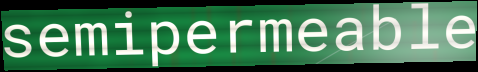
semipermeable